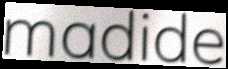
madide